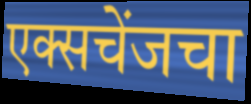
एक्सचेंजचा